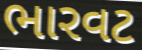
ભારવટ